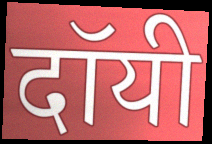
दॉयी